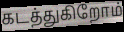
கடத்துகிறோம்